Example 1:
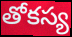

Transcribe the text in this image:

తోకస్య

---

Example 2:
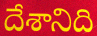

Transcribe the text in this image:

దేశానిది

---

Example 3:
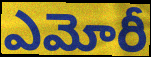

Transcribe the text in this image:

ఎమోరీ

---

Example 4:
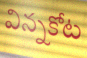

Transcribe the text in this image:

విన్నకోట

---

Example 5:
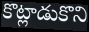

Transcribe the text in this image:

కొట్లాడుకొని